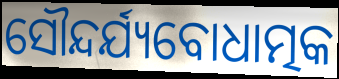
ସୌନ୍ଦର୍ଯ୍ୟବୋଧାତ୍ମକ